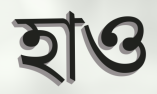
হাও